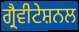
ਗ੍ਰੈਵੀਟੇਸ਼ਨਲ